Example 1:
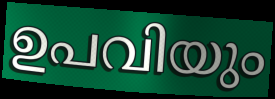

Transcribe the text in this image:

ഉപവിയും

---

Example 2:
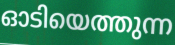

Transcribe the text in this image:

ഓടിയെത്തുന്ന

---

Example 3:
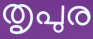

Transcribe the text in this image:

തൃപുര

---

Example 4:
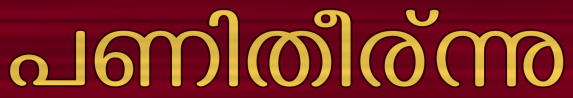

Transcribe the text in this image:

പണിതീര്ന്നു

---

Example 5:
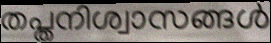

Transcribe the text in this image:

തപ്തനിശ്വാസങ്ങൾ